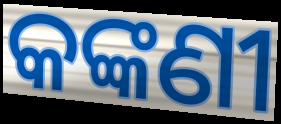
କଙ୍କଣୀ